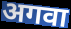
अगवा